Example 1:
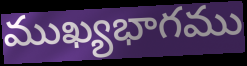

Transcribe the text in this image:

ముఖ్యభాగము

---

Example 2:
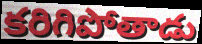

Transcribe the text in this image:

కరిగిపోతాడు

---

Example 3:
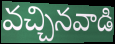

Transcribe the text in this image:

వచ్చినవాడి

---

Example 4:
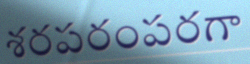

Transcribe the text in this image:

శరపరంపరగా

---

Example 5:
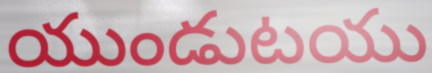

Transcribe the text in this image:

యుండుటయు